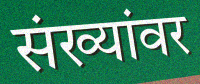
संख्यांवर